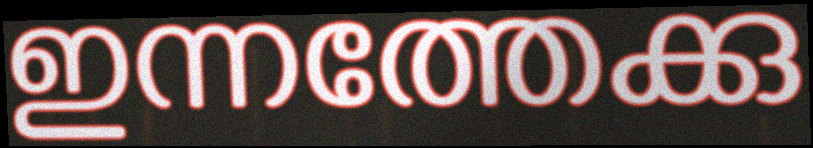
ഇന്നത്തേക്കു